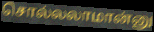
சொல்லலாமான்னு